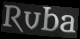
Ruba